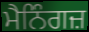
ਮੈਨਿੰਗਜ਼